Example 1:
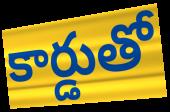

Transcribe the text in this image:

కార్డుతో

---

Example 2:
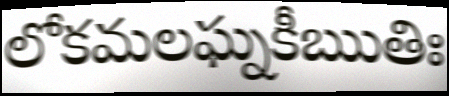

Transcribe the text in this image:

లోకమలఘ్నకీఋతిః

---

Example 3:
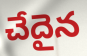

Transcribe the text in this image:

చేదైన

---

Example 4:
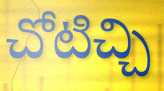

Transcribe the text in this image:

చోటిచ్చి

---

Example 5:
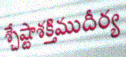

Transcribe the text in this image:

శ్చేష్టాశక్తిముదీర్య